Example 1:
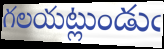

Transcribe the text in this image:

గలయట్లుండుఁ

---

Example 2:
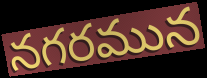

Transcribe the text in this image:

నగరమున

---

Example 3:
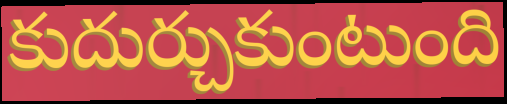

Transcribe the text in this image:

కుదుర్చుకుంటుంది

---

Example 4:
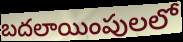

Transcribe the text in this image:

బదలాయింపులలో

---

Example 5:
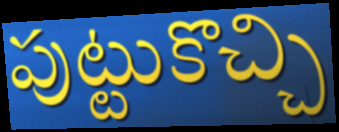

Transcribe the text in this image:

పుట్టుకొచ్చి